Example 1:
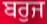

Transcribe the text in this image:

ਬਰੁਜ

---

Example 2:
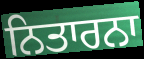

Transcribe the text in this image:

ਨਿਤਾਰਨਾ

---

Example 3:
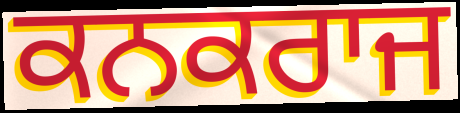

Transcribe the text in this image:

ਕਨਕਰਾਜ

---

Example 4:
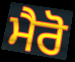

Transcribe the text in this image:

ਮੈਰੋ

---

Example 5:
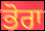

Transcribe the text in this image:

ਭੋਰਾ